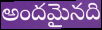
అందమైనది